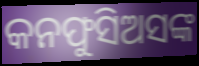
କନଫୁସିଅସଙ୍କ